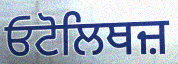
ਓਟੋਲਿਥਜ਼